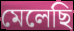
মেলেছি